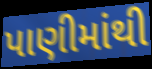
પાણીમાંથી